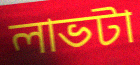
লাভটা